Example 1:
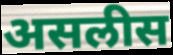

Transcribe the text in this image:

असलीस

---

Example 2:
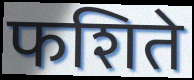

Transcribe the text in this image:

फशिते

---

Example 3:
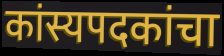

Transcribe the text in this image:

कांस्यपदकांचा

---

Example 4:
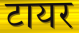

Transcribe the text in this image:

टायर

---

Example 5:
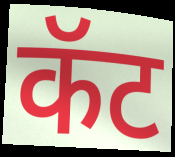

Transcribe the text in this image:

कॅट